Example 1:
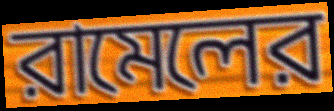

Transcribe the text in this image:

রামেলের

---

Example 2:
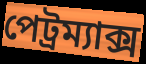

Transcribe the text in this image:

পেট্রম্যাক্স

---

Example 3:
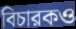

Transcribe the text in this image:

বিচারকও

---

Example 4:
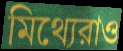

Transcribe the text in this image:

মিথ্যেরাও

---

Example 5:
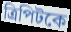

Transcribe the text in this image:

ত্রিপিটকে